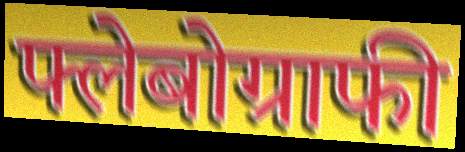
फ्लेबोग्राफी